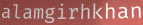
alamgirhkhan